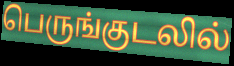
பெருங்குடலில்